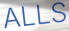
ALLS